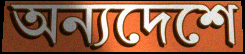
অন্যদেশে